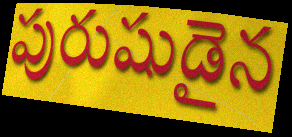
పురుషుడైన